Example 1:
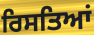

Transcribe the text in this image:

ਰਿਸਤਿਆਂ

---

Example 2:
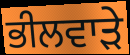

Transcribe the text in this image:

ਭੀਲਵਾੜੇ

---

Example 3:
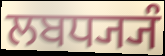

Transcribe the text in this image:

ਲਬਧ੍ਯ੍ਯੰ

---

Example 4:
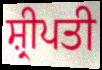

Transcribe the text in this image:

ਸ਼੍ਰੀਪਤੀ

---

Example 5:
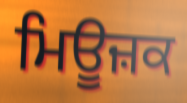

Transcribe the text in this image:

ਮਿਊਜ਼ਕ